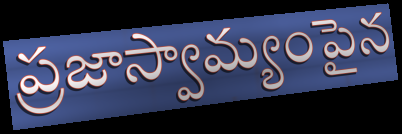
ప్రజాస్వామ్యంపైన